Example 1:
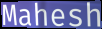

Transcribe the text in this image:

Mahesh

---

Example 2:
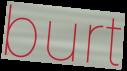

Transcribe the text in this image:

burt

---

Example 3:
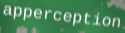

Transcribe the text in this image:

apperception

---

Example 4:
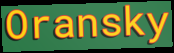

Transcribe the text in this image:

Oransky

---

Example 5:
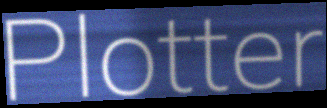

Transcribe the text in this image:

Plotter